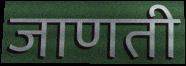
जाणती